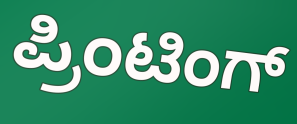
ಪ್ರಿಂಟಿಂಗ್